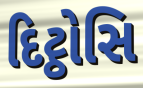
દિટ્ઠોસિ